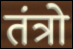
तंत्रो